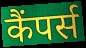
कैंपर्स